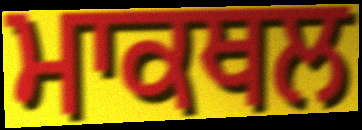
ਮਾਕਥਲ